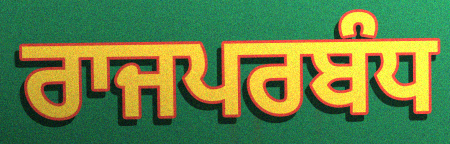
ਰਾਜਪਰਬੰਧ